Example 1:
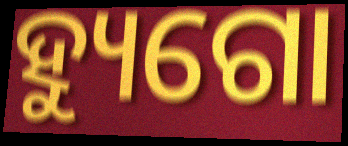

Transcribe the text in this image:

ହ୍ୟୁଗୋ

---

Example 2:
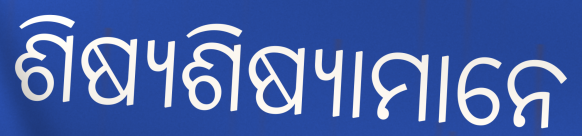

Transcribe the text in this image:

ଶିଷ୍ୟଶିଷ୍ୟାମାନେ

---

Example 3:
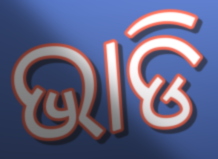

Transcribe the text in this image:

ଭାଡି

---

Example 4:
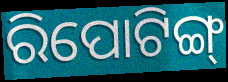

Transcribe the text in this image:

ରିପୋଟିଙ୍ଗ୍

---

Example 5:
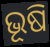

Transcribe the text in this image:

ଭୂଷି